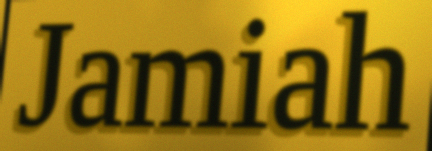
Jamiah